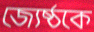
জ্যেষ্ঠকে